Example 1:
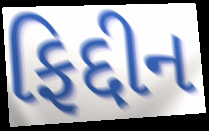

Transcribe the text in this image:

ફિદ્દીન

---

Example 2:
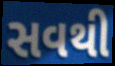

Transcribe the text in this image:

સવથી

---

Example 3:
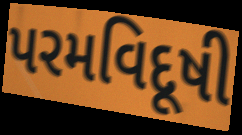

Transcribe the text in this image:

પરમવિદૂષી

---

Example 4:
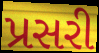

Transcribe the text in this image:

પ્રસરી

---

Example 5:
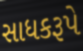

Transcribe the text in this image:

સાધકરૂપે